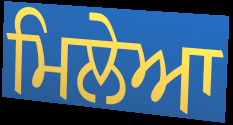
ਮਿਲੇਆ